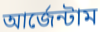
আর্জেন্টাম